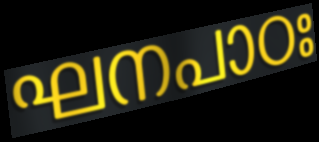
ഘനപാഠഃ